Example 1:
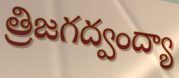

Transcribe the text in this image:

త్రిజగద్వంద్యా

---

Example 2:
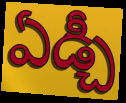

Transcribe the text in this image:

ఏడ్చీ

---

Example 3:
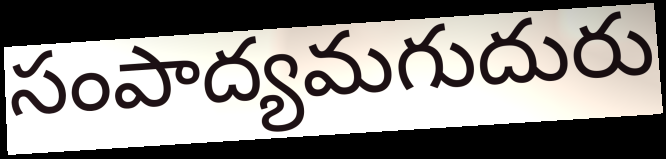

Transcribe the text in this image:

సంపాద్యమగుదురు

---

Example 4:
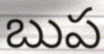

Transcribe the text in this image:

బుప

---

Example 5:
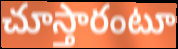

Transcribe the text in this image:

చూస్తారంటూ